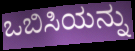
ಒಬಿಸಿಯನ್ನು